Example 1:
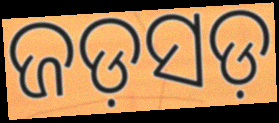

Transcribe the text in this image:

ଜଡ଼ସଡ଼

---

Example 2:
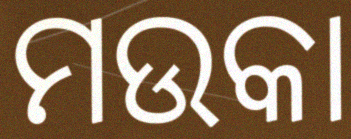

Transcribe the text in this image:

ମଉକା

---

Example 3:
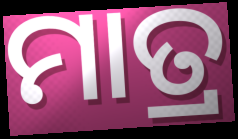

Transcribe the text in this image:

ମାତ୍ର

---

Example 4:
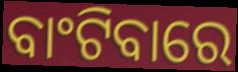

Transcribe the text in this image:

ବାଂଟିବାରେ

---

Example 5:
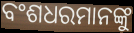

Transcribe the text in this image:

ବଂଶଧରମାନଙ୍କୁ